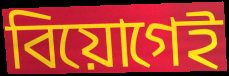
বিয়োগেই